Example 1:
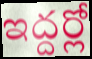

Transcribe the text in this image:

ఇద్దర్లో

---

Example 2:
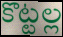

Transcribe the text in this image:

కొట్టల్ల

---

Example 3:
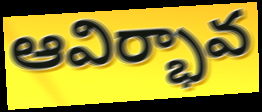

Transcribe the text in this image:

ఆవిర్భావ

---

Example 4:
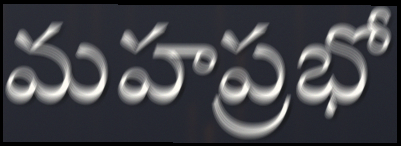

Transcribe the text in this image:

మహప్రభో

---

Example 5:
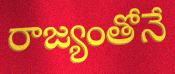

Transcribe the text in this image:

రాజ్యంతోనే